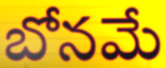
బోనమే